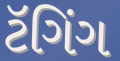
ટૅગિંગ